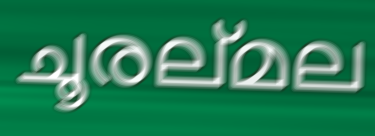
ചൂരല്മല